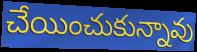
చేయించుకున్నావు